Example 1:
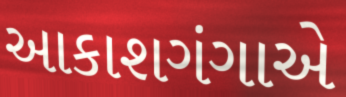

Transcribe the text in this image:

આકાશગંગાએ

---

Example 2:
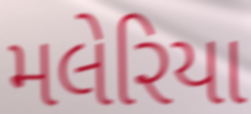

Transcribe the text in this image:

મલેરિયા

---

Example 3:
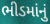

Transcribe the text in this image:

ભીડમાંનું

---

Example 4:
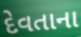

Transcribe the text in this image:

દેવતાના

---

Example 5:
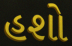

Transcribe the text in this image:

હશો